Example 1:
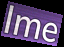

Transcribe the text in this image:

Ime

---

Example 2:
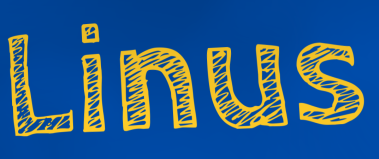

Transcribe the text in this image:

Linus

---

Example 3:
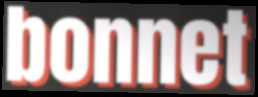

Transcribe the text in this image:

bonnet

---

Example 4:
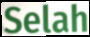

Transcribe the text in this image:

Selah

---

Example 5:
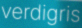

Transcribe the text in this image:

verdigris